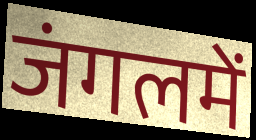
जंगलमें